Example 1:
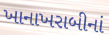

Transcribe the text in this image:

ખાનાખરાબીનાં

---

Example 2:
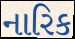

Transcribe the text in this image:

નારિક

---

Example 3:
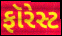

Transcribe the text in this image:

ફૉરેસ્ટ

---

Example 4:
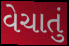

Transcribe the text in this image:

વેચાતું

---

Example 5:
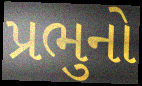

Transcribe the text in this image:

પ્રભુનો